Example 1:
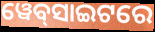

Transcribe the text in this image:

ୱେବ୍‍ସାଇଟରେ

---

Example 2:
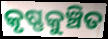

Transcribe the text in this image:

କୃଷ୍ଣକୁଞ୍ଚିତ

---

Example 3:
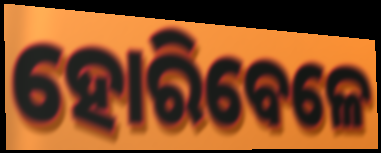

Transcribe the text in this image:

ହୋରିବେଳେ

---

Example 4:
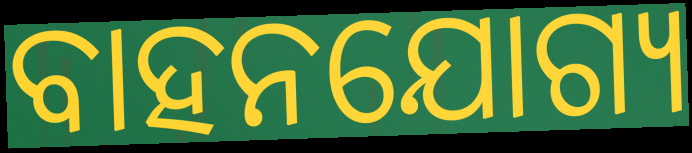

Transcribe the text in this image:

ବାହନଯୋଗ୍ୟ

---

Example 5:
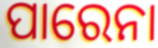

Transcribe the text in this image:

ପାରେନା